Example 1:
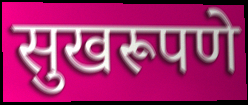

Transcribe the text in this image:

सुखरूपणे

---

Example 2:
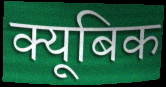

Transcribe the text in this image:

क्यूबिक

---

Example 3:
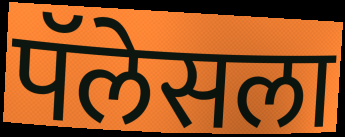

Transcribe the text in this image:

पॅलेसला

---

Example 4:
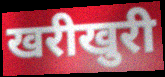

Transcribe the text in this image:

खरीखुरी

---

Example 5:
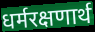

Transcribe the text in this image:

धर्मरक्षणार्थ